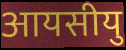
आयसीयु